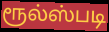
ரூல்ஸ்படி